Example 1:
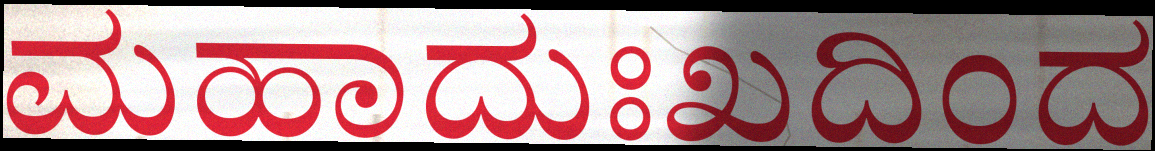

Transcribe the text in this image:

ಮಹಾದುಃಖದಿಂದ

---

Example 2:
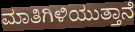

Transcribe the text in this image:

ಮಾತಿಗಿಳಿಯುತ್ತಾನೆ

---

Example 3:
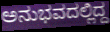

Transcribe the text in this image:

ಅನುಭವದಲ್ಲಿದ್ದ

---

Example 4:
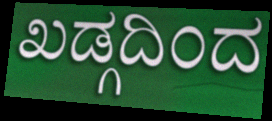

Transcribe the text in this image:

ಖಡ್ಗದಿಂದ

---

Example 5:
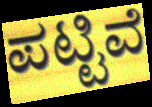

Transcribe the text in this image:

ಪಟ್ಟಿವೆ